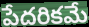
పేదరికమే